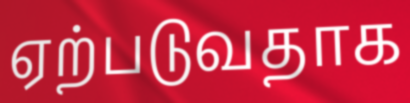
ஏற்படுவதாக